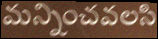
మన్నించవలసి